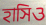
হাসিও